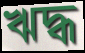
ঋদ্ধ